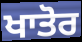
ਖਾਤੋਰ